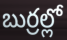
బుర్రల్లో